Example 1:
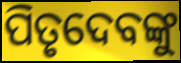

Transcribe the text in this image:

ପିତୃଦେବଙ୍କୁ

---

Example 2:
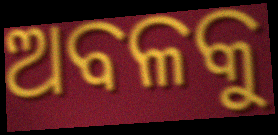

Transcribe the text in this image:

ଅବଳକୁ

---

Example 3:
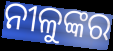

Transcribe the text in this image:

ନୀଳୁଙ୍କର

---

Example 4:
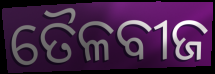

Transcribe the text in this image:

ତୈଳବୀଜ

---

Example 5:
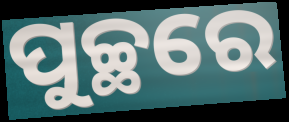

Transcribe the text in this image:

ପୁଚ୍ଛରେ